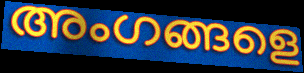
അംഗങ്ങളെ